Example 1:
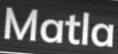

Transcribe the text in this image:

Matla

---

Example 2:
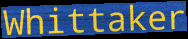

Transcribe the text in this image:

Whittaker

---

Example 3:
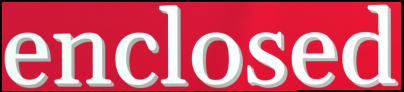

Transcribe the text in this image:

enclosed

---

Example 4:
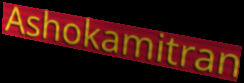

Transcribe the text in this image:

Ashokamitran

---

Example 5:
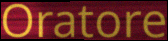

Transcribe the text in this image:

Oratore